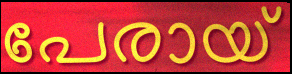
പേരായ്